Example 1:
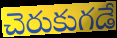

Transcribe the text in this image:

చెరుకుగడే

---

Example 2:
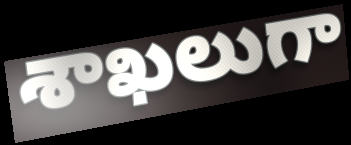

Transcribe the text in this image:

శాఖలుగా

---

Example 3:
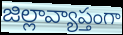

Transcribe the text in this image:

జిల్లావ్యాప్తంగా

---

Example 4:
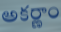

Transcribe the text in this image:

అకర్ణాం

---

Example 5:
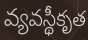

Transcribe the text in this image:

వ్యవస్థీకృత